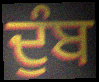
ਦੁੰਬ